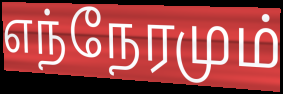
எந்நேரமும்